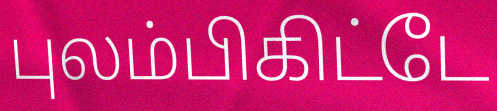
புலம்பிகிட்டே